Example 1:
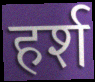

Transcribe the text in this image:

हर्श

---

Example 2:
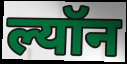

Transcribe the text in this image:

ल्यॉन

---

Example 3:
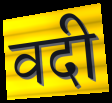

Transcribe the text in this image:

वदी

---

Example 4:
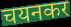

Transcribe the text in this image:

चयनकर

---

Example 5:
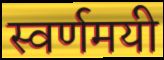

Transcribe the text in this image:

स्वर्णमयी